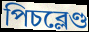
পিচব্লেণ্ড